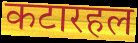
कटारहल